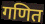
गणित